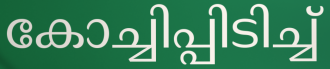
കോച്ചിപ്പിടിച്ച്